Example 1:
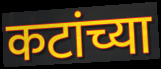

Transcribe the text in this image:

कटांच्या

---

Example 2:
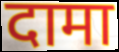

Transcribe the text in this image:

दामा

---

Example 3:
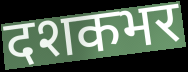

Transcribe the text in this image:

दशकभर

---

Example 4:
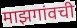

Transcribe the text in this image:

माझगांवची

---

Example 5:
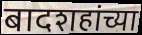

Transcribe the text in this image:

बादशहांच्या